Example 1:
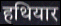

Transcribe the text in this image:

हथियार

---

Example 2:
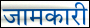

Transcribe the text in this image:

जामकारी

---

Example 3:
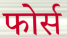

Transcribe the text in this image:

फोर्स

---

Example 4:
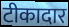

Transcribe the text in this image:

टीकादार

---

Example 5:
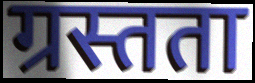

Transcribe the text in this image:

ग्रस्तता